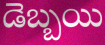
డెబ్బయి